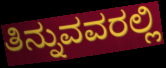
ತಿನ್ನುವವರಲ್ಲಿ